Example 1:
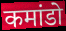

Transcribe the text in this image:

कमांडो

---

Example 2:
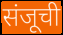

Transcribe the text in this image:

संजूची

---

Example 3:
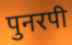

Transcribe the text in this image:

पुनरपी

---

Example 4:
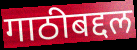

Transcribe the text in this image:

गाठीबद्दल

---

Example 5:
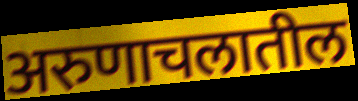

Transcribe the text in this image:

अरुणाचलातील